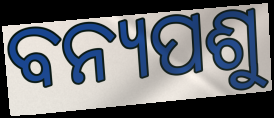
ବନ୍ୟପଶୁ